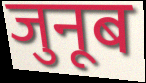
जुनूब